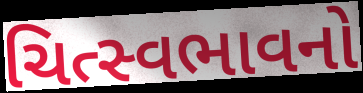
ચિત્સ્વભાવનો